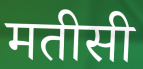
मतीसी